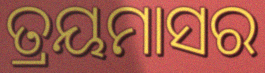
ତ୍ରୟମାସର